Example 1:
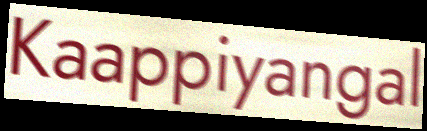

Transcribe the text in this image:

Kaappiyangal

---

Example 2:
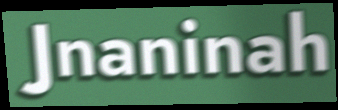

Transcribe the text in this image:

Jnaninah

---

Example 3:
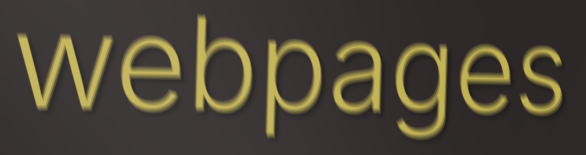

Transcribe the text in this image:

webpages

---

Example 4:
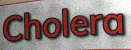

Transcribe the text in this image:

Cholera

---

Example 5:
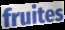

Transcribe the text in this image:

fruites